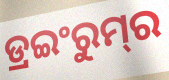
ଡ୍ରଇଂରୁମ୍‌ର